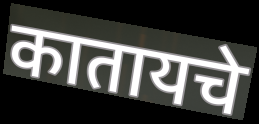
कातायचे